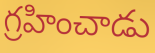
గ్రహించాడు